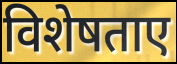
विशेषताए